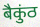
बैकुंठ